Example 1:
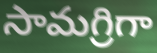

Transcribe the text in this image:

సామగ్రిగా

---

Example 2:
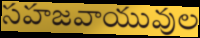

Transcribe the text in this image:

సహజవాయువుల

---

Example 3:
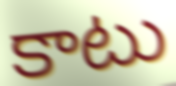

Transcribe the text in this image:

కాటు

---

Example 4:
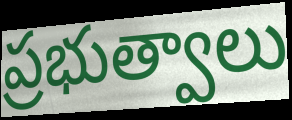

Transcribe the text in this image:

ప్రభుత్వాలు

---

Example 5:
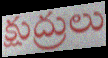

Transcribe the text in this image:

క్షుద్రులు